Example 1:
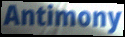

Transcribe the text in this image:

Antimony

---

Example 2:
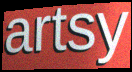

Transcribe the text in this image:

artsy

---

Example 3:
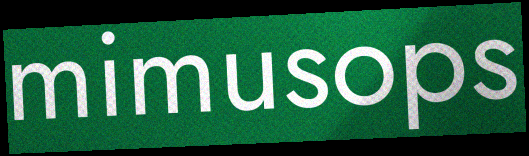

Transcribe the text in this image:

mimusops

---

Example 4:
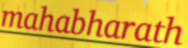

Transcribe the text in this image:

mahabharath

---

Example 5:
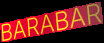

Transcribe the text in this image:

BARABAR